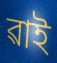
ৱাই